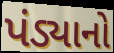
પંડ્યાનો